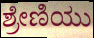
ಶ್ರೇಣಿಯು